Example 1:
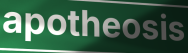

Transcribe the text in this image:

apotheosis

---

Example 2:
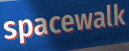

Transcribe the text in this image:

spacewalk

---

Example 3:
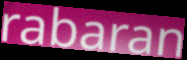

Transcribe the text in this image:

rabaran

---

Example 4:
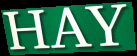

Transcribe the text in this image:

HAY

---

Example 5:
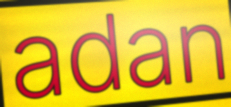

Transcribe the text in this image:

adan